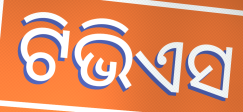
ଟିଭିଏସ